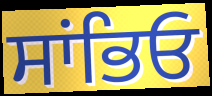
ਸਾਂਭਿਓ